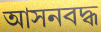
আসনবদ্ধ